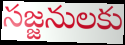
సజ్జనులకు